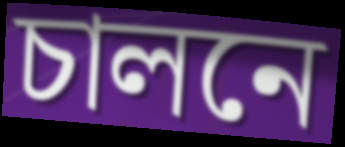
চালনে